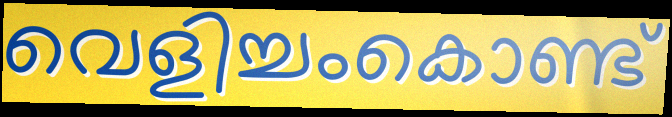
വെളിച്ചംകൊണ്ട്